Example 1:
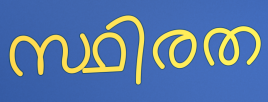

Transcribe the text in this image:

സ്ഥിരത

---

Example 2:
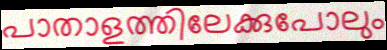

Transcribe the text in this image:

പാതാളത്തിലേക്കുപോലും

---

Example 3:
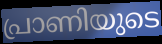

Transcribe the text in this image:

പ്രാണിയുടെ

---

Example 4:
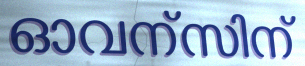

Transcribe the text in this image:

ഓവന്സിന്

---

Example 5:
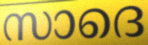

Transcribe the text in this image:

സാദെ